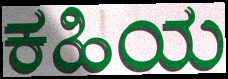
ಕಹಿಯ